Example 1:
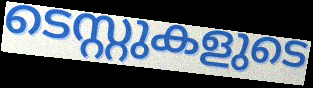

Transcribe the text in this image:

ടെസ്റ്റുകളുടെ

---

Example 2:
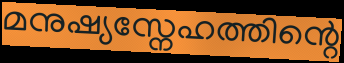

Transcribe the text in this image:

മനുഷ്യസ്നേഹത്തിന്റെ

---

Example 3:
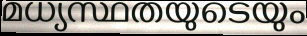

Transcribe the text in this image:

മധ്യസ്ഥതയുടെയും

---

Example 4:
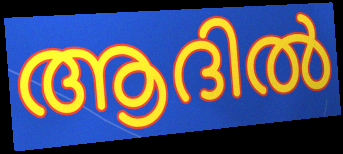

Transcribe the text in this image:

ആദിൽ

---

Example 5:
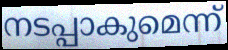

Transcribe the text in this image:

നടപ്പാകുമെന്ന്